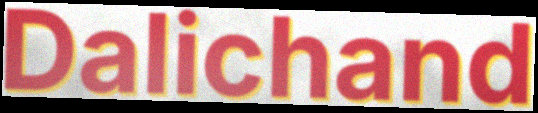
Dalichand